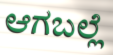
ಆಗಬಲ್ಲೆ